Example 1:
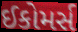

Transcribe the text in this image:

ઈકોમર્સ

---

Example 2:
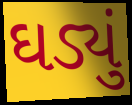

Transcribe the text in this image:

ઘડ્યું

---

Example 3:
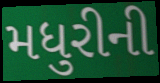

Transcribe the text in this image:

મધુરીની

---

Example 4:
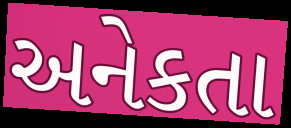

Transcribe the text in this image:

અનેકતા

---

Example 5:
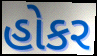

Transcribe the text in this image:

હોકર